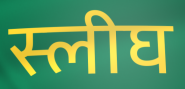
स्लीघ